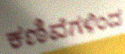
ಕಣಿವೆಗಳಿಂದ